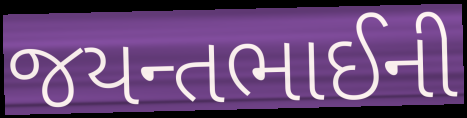
જયન્તભાઈની